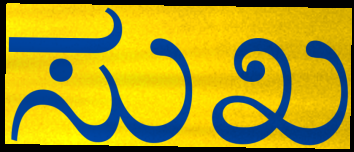
ಸುಖ